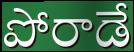
పోరాడే